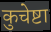
कुचेष्टा